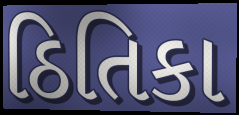
ઠિતિકા